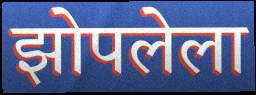
झोपलेला